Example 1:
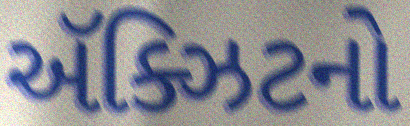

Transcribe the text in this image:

ઍક્ઝિટનો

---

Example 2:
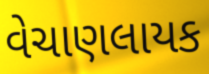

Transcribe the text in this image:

વેચાણલાયક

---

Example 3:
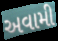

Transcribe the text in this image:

અવામી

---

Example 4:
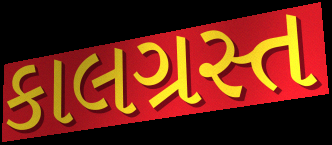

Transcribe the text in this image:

કાલગ્રસ્ત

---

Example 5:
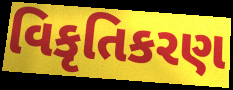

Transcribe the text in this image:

વિકૃતિકરણ